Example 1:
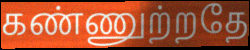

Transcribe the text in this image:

கண்ணுற்றதே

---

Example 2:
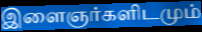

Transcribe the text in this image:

இளைஞர்களிடமும்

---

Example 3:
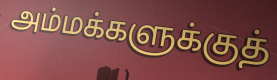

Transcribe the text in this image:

அம்மக்களுக்குத்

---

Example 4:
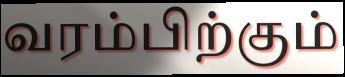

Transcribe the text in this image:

வரம்பிற்கும்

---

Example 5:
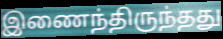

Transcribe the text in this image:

இணைந்திருந்தது